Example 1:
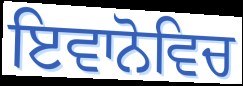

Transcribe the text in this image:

ਇਵਾਨੋਵਿਚ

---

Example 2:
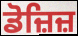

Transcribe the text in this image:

ਡੋਜ਼ਿਜ਼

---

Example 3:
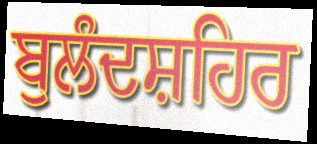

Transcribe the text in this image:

ਬੁਲੰਦਸ਼ਹਿਰ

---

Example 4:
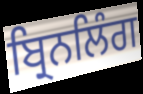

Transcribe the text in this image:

ਬ੍ਰਿਨਲਿੰਗ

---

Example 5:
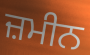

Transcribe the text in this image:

ਜ਼ਮੀਨ